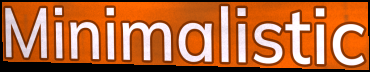
Minimalistic